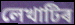
লেখাটিৰ